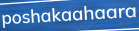
poshakaahaara